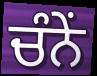
ਚੰਨੇਂ